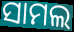
ସାମଲ